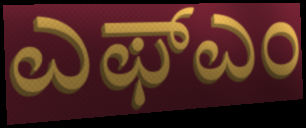
ಎಫ್ಎಂ